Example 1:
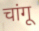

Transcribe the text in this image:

चांगू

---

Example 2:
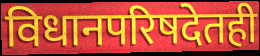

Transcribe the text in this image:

विधानपरिषदेतही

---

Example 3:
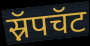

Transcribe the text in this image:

स्नॅपचॅट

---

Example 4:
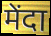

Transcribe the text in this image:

मेंदा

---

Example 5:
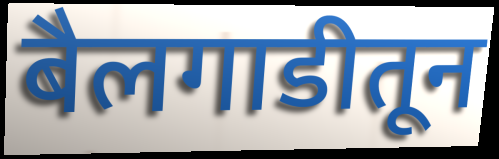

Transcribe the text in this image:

बैलगाडीतून